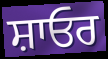
ਸ਼ਾਓਰ